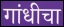
गांधीचा